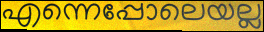
എന്നെപ്പോലെയല്ല